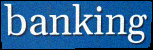
banking